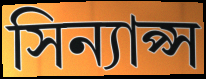
সিন্যাপ্স